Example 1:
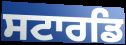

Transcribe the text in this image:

ਸਟਾਰਡਿ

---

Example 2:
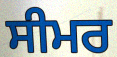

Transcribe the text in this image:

ਸੀਮਰ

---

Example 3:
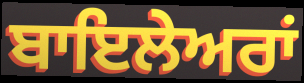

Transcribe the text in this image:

ਬਾਇਲੇਅਰਾਂ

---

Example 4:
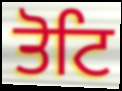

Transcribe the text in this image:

ਤੋਟਿ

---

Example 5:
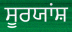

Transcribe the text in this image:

ਸੂਰਯਾਂਸ਼